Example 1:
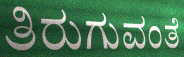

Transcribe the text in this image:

ತಿರುಗುವಂತೆ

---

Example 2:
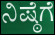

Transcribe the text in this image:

ನಿಷ್ಠೆಗೆ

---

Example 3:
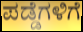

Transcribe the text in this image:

ಪಡ್ಡೆಗಳಿಗೆ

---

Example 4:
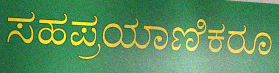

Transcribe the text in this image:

ಸಹಪ್ರಯಾಣಿಕರೂ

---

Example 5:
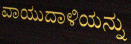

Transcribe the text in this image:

ವಾಯುದಾಳಿಯನ್ನು